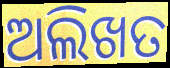
ଅଲିଖତ